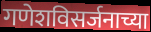
गणेशविसर्जनाच्या